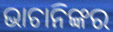
ଭାଚାନିଙ୍କର